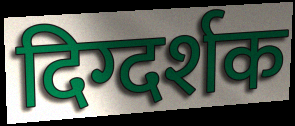
दिग्दर्शक